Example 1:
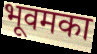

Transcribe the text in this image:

भूवमका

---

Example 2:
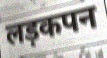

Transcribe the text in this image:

लड़कपन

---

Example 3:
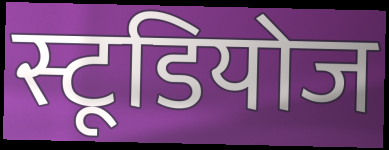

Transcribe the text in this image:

स्टूडियोज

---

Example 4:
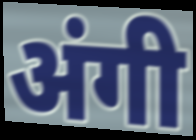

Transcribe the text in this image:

अंगी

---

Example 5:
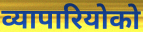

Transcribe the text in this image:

व्यापारियोको